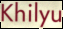
Khilyu